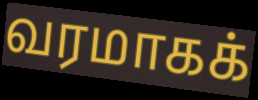
வரமாகக்